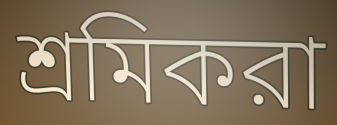
শ্রমিকরা